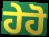
ਹੇਹੋ